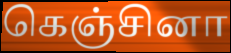
கெஞ்சினா